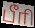
பீரி